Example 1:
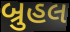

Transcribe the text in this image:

બ્રુહલ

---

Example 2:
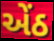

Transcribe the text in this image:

એંઠ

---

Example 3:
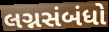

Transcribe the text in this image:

લગ્નસંબંધો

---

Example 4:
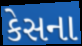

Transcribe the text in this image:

કેસના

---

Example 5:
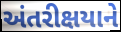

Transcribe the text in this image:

અંતરીક્ષયાને